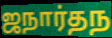
ஜநார்தந